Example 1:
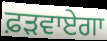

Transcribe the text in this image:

ਫ਼ੜਵਾਏਗਾ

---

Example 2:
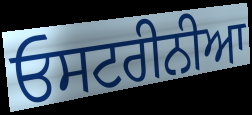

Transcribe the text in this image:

ਓਸਟਰੀਨੀਆ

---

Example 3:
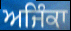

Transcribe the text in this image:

ਅਜਿੰਕਾ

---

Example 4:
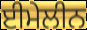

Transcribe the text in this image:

ਈਮੇਲੀਨ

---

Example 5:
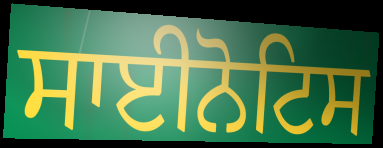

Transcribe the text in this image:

ਸਾਈਨੋਟਿਸ